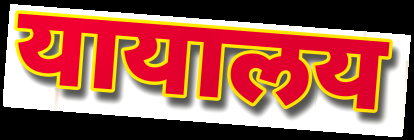
यायालय